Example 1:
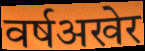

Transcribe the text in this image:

वर्षअखेर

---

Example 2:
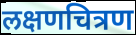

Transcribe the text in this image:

लक्षणचित्रण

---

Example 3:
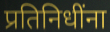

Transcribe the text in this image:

प्रतिनिधींना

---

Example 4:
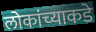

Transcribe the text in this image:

लोकांच्याकडे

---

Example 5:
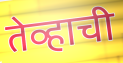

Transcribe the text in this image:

तेव्हाची